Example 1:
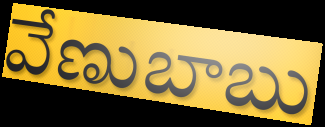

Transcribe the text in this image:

వేణుబాబు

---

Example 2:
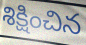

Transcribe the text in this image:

శిక్షించిన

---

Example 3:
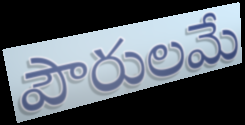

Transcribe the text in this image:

పౌరులమే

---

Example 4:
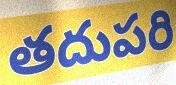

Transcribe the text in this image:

తదుపరి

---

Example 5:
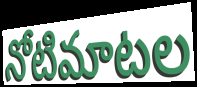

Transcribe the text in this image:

నోటిమాటల